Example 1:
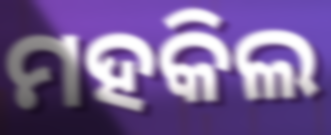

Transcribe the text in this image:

ମହକିଲ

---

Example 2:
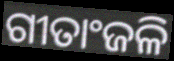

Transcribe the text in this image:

ଗୀତାଂଜଳି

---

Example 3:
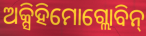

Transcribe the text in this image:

ଅକ୍ସିହିମୋଗ୍ଲୋବିନ୍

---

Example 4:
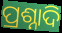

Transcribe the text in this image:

ପ୍ରଶ୍ନାଦି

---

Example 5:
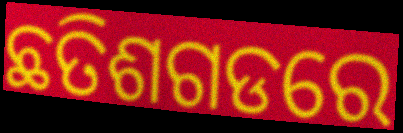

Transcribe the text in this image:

ଛତିଶଗଡରେ